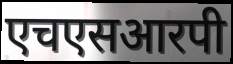
एचएसआरपी